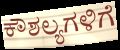
ಕೌಶಲ್ಯಗಳಿಗೆ